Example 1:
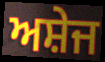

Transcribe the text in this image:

ਅਸ਼ੇਜ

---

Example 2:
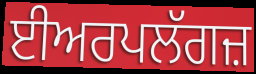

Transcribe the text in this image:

ਈਅਰਪਲੱਗਜ਼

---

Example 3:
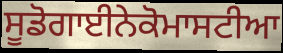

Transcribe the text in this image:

ਸੂਡੋਗਾਈਨੇਕੋਮਾਸਟੀਆ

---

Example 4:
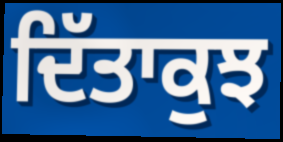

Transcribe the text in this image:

ਦਿੱਤਾਕੁਝ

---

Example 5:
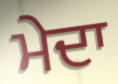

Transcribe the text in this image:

ਮੇਦਾ